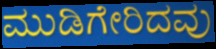
ಮುಡಿಗೇರಿದವು